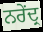
ਨਰੇਂਦ੍ਰ